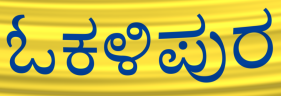
ಓಕಳಿಪುರ